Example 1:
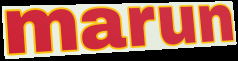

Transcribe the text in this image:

marun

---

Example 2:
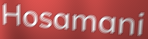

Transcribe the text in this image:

Hosamani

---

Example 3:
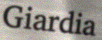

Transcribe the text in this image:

Giardia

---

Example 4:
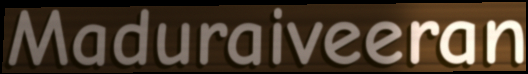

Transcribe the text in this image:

Maduraiveeran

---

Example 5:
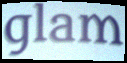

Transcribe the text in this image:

glam